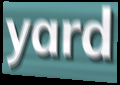
yard